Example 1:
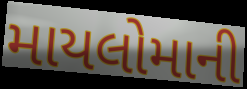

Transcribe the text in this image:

માયલોમાની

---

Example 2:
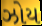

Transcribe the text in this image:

ઝોય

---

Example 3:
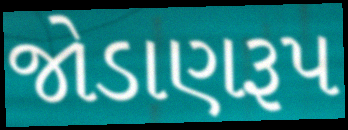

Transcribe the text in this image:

જોડાણરૂપ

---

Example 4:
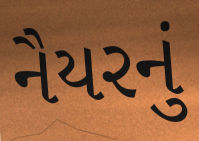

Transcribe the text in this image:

નૈયરનું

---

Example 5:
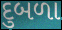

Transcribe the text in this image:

દુબળા